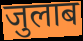
जुलाब